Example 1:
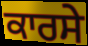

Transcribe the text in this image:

ਕਾਰਸੇ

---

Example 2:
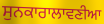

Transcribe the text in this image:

ਸੁਨਕਾਰਾਲਾਵਣੀਆ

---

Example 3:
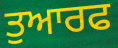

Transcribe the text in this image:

ਤੁਆਰਫ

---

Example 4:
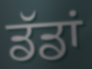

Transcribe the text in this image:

ਡੱਡਾਂ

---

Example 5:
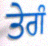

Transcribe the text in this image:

ਤੇਗੰ